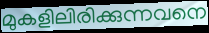
മുകളിലിരിക്കുന്നവനെ